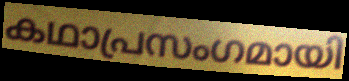
കഥാപ്രസംഗമായി